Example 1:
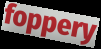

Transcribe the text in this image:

foppery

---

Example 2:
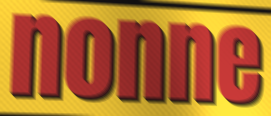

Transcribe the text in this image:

nonne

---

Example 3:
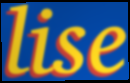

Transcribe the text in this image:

lise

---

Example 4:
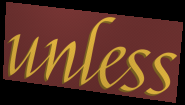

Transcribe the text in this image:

unless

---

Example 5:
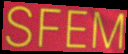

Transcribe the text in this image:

SFEM